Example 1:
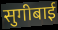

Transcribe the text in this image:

सुगीबाई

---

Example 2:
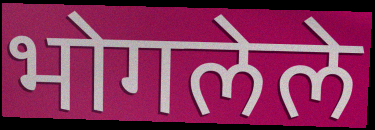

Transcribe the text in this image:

भोगलेले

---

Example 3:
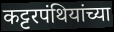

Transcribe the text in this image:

कट्टरपंथियांच्या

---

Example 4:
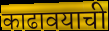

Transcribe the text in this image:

काढावयाची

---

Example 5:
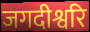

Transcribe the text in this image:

जगदीश्वरि